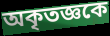
অকৃতজ্ঞকে